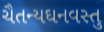
ચૈતન્યઘનવસ્તુ